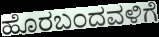
ಹೊರಬಂದವಳಿಗೆ